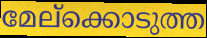
മേല്ക്കൊടുത്ത